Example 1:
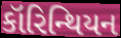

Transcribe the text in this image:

કૉરિન્થિયન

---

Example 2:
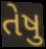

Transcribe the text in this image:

તેષુ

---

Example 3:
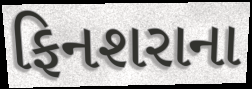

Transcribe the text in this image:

ફિનશરાના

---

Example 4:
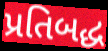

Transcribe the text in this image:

પ્રતિબદ્ધ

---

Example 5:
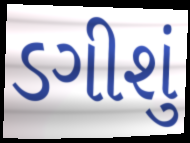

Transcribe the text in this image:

ડગીશું